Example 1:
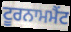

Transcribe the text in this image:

ਟੂਰਨਾਮਮੈਂਟ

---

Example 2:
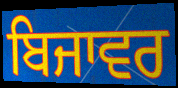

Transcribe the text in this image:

ਬਿਜਾਵਰ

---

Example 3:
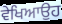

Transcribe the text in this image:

ਵੇਖਿਆਉਹ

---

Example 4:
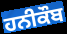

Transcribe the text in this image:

ਹਨੀਕੌਬ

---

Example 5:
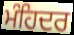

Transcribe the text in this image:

ਮੰਹਿਦਰ